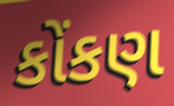
કોંકણ